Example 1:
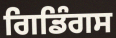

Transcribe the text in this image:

ਗਿਡਿੰਗਸ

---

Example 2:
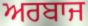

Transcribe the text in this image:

ਅਰਬਾਜ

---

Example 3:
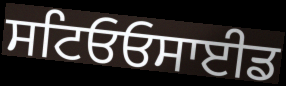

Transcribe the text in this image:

ਸਟਿਓਓਸਾਈਡ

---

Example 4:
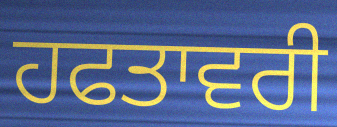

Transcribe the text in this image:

ਹਫਤਾਵਰੀ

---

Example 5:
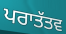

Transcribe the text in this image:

ਪਰਾਤੱਤਵ